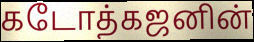
கடோத்கஜனின்